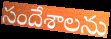
సందేశాలను